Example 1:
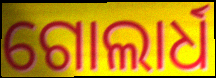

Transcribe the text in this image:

ଗୋଲାର୍ଧ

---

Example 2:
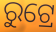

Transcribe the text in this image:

ରୁଟ୍ରେ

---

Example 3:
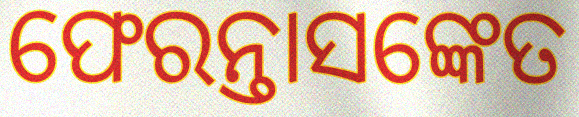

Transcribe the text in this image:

ଫେରନ୍ତାସଙ୍କେତ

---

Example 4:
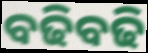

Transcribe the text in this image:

ବଢିବଢି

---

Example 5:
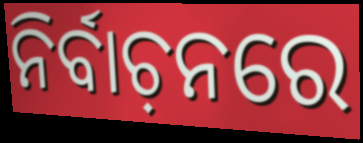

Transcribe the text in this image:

ନିର୍ବାଚ଼ନରେ